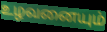
உழவனையும்